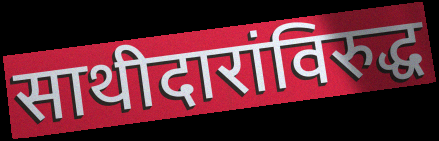
साथीदारांविरुद्ध